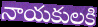
నాయకులకి